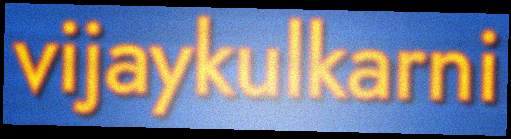
vijaykulkarni